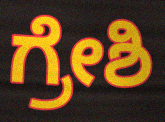
ಗ್ರೇಶಿ